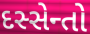
દસ્સેન્તો